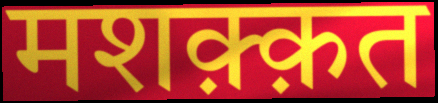
मशक़्क़त